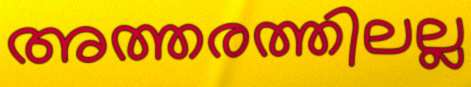
അത്തരത്തിലല്ല